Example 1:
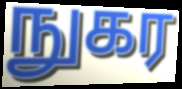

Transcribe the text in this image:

நுகர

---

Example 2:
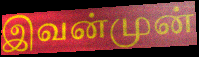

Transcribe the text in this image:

இவன்முன்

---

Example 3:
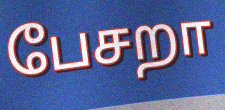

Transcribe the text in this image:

பேசறா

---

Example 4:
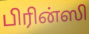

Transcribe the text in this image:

பிரின்ஸி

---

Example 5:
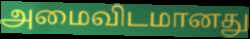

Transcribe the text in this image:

அமைவிடமானது